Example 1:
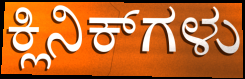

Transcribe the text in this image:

ಕ್ಲಿನಿಕ್‌ಗಳು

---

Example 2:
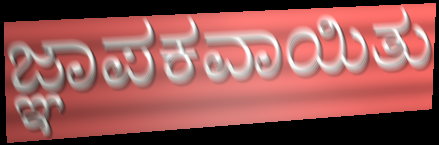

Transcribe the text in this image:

ಜ್ಞಾಪಕವಾಯಿತು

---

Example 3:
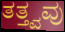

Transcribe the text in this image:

ತತ್ತ್ವವು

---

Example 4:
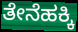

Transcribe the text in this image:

ತೇನೆಹಕ್ಕಿ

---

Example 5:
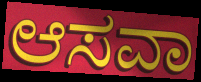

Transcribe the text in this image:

ಆಸವಾ